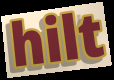
hilt